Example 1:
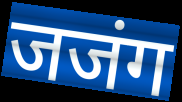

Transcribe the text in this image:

जजंग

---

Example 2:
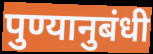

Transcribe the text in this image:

पुण्यानुबंधी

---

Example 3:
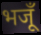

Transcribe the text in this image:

भजूँ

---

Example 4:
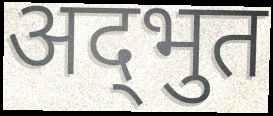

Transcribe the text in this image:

अद्‌भुत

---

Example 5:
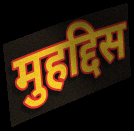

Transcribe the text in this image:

मुहद्दिस